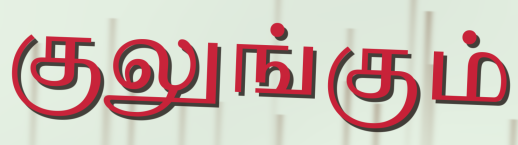
குலுங்கும்